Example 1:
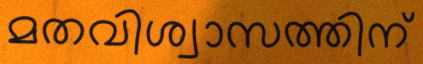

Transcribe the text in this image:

മതവിശ്വാസത്തിന്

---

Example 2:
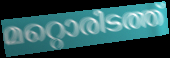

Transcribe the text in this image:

മറ്റൊരിടത്ത്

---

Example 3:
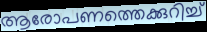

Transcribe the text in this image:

ആരോപണത്തെക്കുറിച്ച്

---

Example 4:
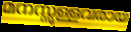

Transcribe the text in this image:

മനസ്സുള്ളവരായ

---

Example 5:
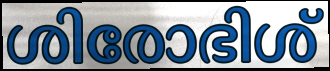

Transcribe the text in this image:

ശിരോഭിശ്